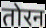
तोरन